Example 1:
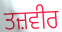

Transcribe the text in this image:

ਤਜ਼ਵੀਰ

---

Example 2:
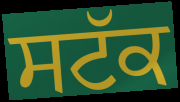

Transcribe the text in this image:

ਸਟੱਕ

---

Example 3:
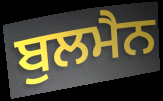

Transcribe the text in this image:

ਬੁਲਮੈਨ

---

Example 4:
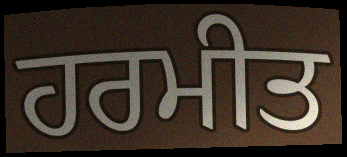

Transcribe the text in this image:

ਹਰਮੀਤ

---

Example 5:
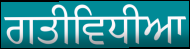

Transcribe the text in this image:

ਗਤੀਵਿਧੀਆ